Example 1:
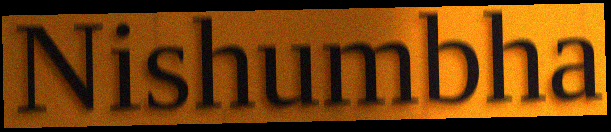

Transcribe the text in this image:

Nishumbha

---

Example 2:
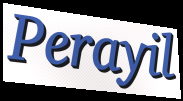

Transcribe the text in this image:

Perayil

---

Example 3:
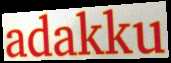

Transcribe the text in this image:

adakku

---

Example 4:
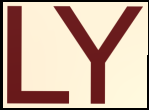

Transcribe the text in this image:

LY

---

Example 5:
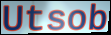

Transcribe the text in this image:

Utsob